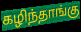
கழிந்தாங்கு